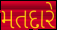
મતદારે